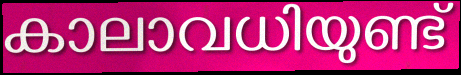
കാലാവധിയുണ്ട്